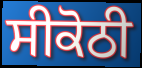
ਸੀਕੋਠੀ